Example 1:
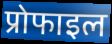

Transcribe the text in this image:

प्रोफाइल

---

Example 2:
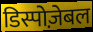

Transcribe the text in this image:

डिस्पोज़ेबल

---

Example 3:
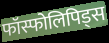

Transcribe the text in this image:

फॉस्फोलिपिड्स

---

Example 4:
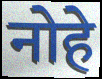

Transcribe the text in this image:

नोहे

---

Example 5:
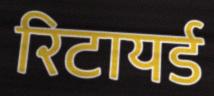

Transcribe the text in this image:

रिटायर्ड